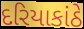
દરિયાકાંઠે